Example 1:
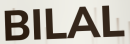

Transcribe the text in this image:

BILAL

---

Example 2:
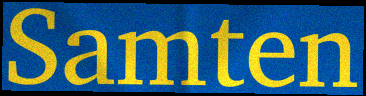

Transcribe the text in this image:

Samten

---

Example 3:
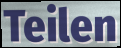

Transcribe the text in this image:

Teilen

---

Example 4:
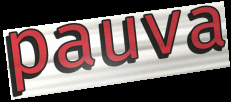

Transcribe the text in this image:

pauva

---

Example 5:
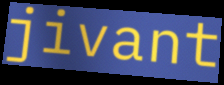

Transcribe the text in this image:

jivant